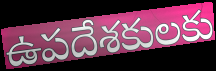
ఉపదేశకులకు